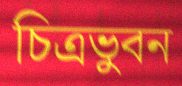
চিত্রভুবন